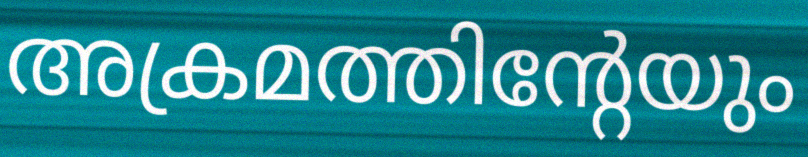
അക്രമത്തിന്റേയും